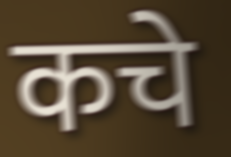
कचे